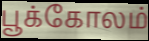
பூக்கோலம்